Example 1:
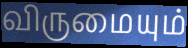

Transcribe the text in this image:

விருமையும்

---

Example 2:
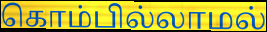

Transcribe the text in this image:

கொம்பில்லாமல்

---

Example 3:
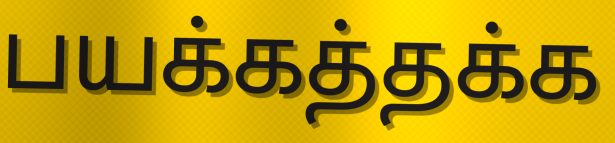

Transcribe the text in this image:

பயக்கத்தக்க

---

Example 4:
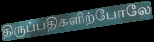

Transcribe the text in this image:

திருப்பதிகளிற்போலே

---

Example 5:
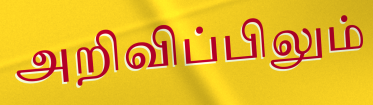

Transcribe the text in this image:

அறிவிப்பிலும்